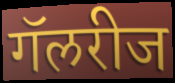
गॅलरीज